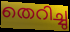
തെറിച്ചു